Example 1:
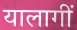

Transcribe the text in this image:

यालागीं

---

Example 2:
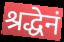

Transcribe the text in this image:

श्रद्धेनं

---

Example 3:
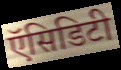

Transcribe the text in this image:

ऍसिडिटी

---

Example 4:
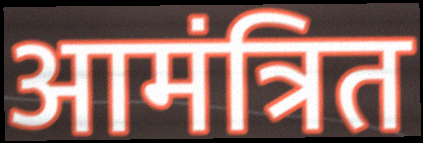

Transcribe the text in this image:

आमंत्रित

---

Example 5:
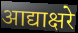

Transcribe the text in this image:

आद्याक्षरे